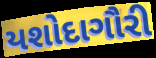
યશોદાગૌરી